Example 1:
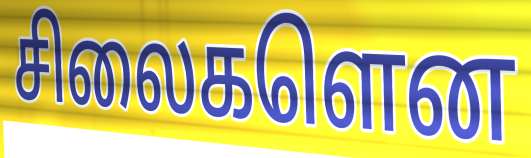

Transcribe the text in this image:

சிலைகளென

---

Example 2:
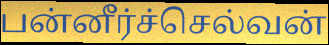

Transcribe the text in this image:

பன்னீர்ச்செல்வன்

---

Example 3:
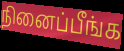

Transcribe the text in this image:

நினைப்பீங்க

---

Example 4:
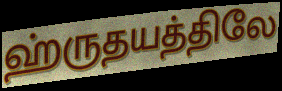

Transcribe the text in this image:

ஹ்ருதயத்திலே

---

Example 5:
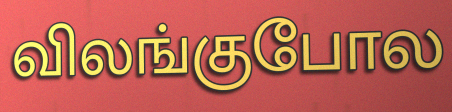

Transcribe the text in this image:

விலங்குபோல